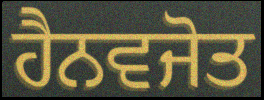
ਹੈਨਵਜੋਤ